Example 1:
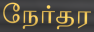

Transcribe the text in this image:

நேர்தர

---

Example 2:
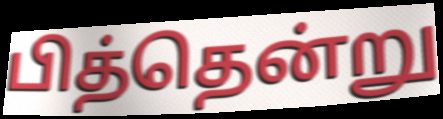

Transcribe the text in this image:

பித்தென்று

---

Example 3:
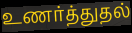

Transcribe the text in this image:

உணர்த்துதல்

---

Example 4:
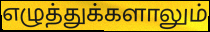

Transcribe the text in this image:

எழுத்துக்களாலும்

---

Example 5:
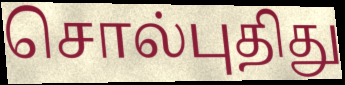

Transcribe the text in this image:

சொல்புதிது